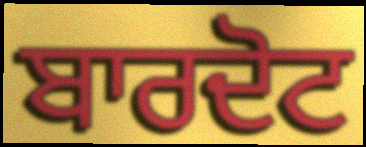
ਬਾਰਦੋਟ